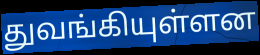
துவங்கியுள்ளன